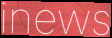
inews